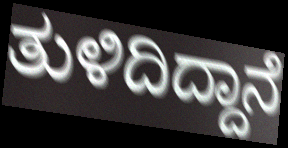
ತುಳಿದಿದ್ದಾನೆ